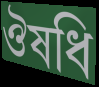
ঔষধি